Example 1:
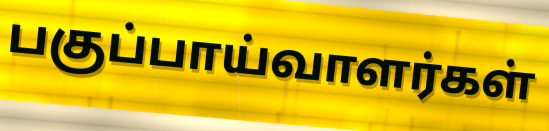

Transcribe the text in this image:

பகுப்பாய்வாளர்கள்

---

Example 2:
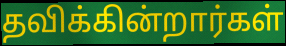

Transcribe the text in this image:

தவிக்கின்றார்கள்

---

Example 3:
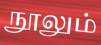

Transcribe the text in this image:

நூலும்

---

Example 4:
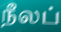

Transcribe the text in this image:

நீலப்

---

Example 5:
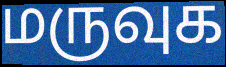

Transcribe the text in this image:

மருவுக